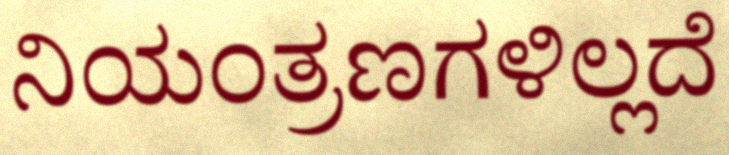
ನಿಯಂತ್ರಣಗಳಿಲ್ಲದೆ